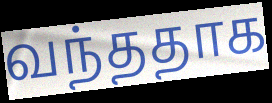
வந்ததாக